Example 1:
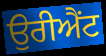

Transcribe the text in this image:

ਉਰੀਐਂਟ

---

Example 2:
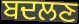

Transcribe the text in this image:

ਬਦਲਣ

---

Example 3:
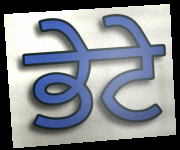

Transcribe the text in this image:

ਭੇਟੇ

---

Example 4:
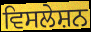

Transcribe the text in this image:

ਵਿਸਲੇਸ਼ਨ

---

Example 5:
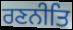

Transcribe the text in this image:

ਰਣਨੀਤਿ